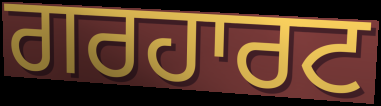
ਗਰਹਾਰਟ